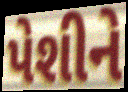
પેશીને